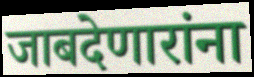
जाबदेणारांना